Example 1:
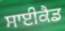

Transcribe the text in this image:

ਸਾਈਕੈਡ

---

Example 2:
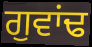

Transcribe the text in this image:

ਗੁਵਾਂਢ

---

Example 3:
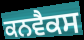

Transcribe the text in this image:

ਕਨਵੈਕਸ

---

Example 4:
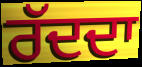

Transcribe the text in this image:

ਰੱਦਦਾ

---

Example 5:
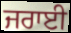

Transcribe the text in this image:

ਜਰਾਈ